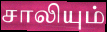
சாலியும்